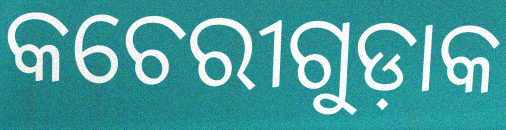
କଚେରୀଗୁଡ଼ାକ